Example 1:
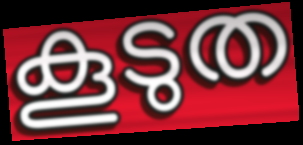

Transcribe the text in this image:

കൂടുത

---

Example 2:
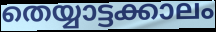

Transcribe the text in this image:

തെയ്യാട്ടക്കാലം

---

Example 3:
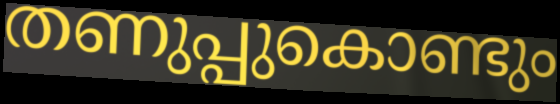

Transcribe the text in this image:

തണുപ്പുകൊണ്ടും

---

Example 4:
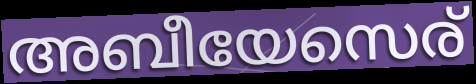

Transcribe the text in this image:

അബീയേസെര്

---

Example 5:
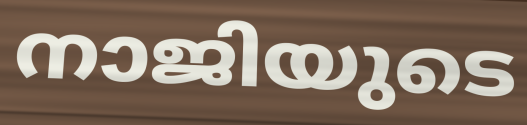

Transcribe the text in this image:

നാജിയുടെ